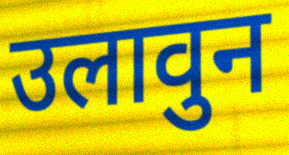
उलावुन